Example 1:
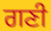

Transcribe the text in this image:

ਗਣੀ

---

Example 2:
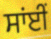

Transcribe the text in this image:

ਸਾਂਈਂ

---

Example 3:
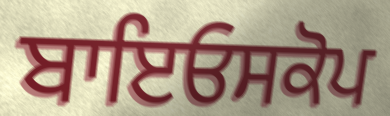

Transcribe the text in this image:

ਬਾਇਓਸਕੋਪ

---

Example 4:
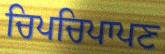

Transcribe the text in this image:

ਚਿਪਚਿਪਾਪਣ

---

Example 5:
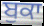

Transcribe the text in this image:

ਬੁਕਾ